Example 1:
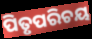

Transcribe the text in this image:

ପିତୃପରିଚୟ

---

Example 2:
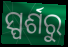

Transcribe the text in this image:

ସ୍ପର୍ଶରୁ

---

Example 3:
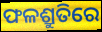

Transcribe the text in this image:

ଫଳଶ୍ରୁତିରେ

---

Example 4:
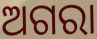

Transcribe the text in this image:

ଅଗରା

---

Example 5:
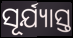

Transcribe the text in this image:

ସୂର୍ଯ୍ୟାସ୍ତ